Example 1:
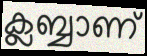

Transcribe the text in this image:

ക്ലബ്ബാണ്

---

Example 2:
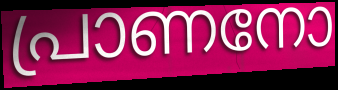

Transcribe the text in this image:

പ്രാണനോ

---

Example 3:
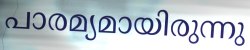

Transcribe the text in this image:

പാരമ്യമായിരുന്നു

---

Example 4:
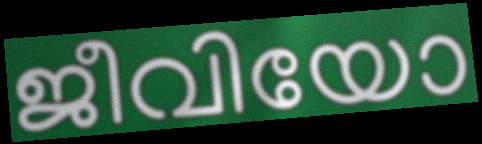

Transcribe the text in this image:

ജീവിയോ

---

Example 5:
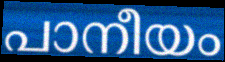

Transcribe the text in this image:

പാനീയം